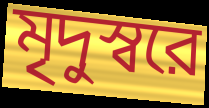
মৃদুস্বরে